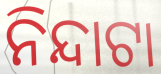
ନିନ୍ଦାଟା